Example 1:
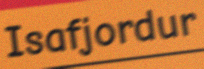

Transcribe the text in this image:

Isafjordur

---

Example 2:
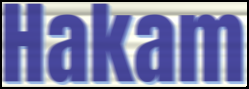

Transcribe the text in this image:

Hakam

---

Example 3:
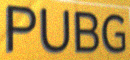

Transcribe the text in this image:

PUBG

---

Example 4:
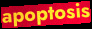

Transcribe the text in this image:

apoptosis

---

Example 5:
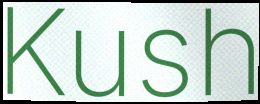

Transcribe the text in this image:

Kush